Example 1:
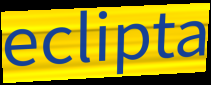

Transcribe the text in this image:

eclipta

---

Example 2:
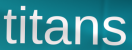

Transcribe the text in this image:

titans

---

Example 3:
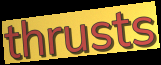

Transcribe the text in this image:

thrusts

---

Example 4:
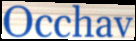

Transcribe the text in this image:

Occhav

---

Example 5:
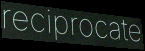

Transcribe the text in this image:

reciprocate